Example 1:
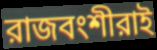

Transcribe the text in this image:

রাজবংশীরাই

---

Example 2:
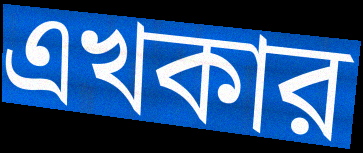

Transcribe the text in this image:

এখকার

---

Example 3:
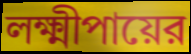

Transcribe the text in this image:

লক্ষ্মীপায়ের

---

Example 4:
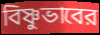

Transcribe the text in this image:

বিষ্ণুভাবের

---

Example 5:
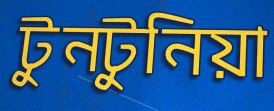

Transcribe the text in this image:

টুনটুনিয়া